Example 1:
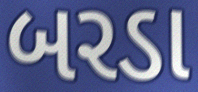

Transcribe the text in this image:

બરડા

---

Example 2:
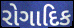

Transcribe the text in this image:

રોગાદિક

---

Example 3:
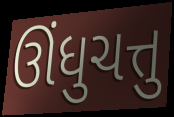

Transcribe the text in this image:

ઊંધુચત્તુ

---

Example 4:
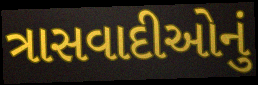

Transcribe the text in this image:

ત્રાસવાદીઓનું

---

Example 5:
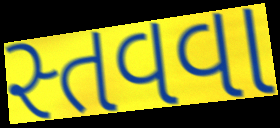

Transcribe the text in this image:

સ્તવવા